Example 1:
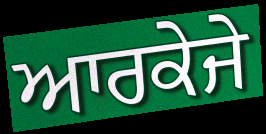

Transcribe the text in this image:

ਆਰਕੇਜੇ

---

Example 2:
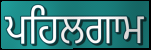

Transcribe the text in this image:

ਪਹਿਲਗਾਮ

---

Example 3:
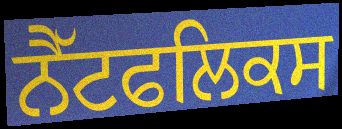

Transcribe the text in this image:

ਨੈੱਟਫਲਿਕਸ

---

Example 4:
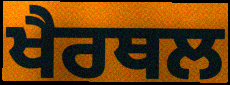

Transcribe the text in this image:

ਖੈਰਥਲ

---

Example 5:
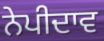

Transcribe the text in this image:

ਨੇਪੀਦਾਵ